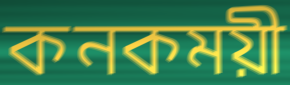
কনকময়ী